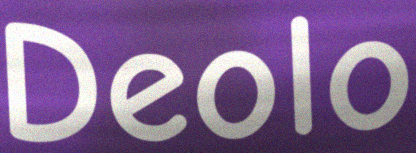
Deolo